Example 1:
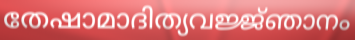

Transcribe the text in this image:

തേഷാമാദിത്യവജ്ജ്ഞാനം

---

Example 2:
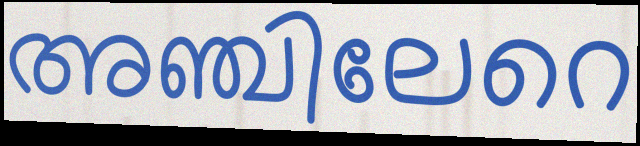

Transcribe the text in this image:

അഞ്ചിലേറെ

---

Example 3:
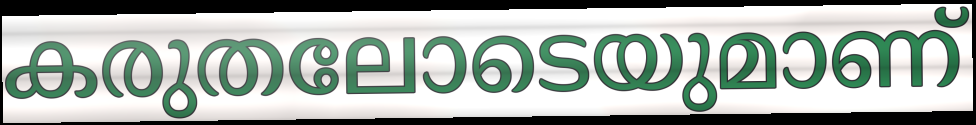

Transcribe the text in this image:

കരുതലോടെയുമാണ്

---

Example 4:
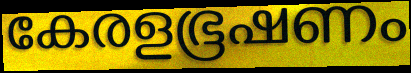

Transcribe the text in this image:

കേരളഭൂഷണം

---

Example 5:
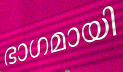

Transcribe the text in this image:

ഭാഗമായി